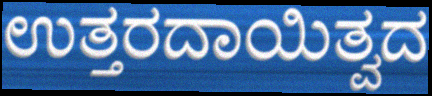
ಉತ್ತರದಾಯಿತ್ವದ